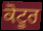
ਕੋਟੂਰ